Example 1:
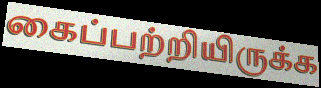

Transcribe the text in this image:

கைப்பற்றியிருக்க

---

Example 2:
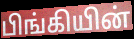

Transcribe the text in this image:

பிங்கியின்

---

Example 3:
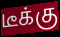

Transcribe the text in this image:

டீக்கு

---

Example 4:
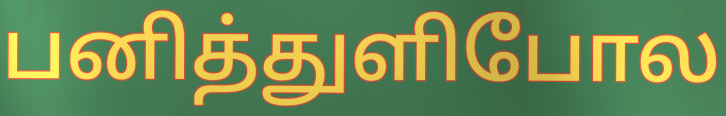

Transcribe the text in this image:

பனித்துளிபோல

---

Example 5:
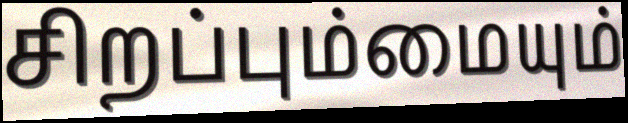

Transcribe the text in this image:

சிறப்பும்மையும்